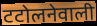
टटोलनेवाली